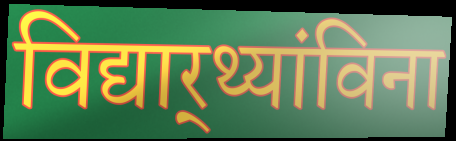
विद्यार्थ्यांविना